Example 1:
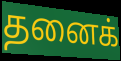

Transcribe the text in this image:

தனைக்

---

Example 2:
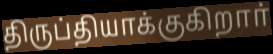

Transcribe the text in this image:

திருப்தியாக்குகிறார்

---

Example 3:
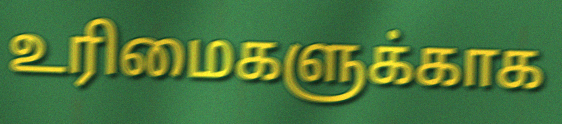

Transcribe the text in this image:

உரிமைகளுக்காக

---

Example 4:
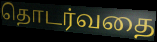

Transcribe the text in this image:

தொடர்வதை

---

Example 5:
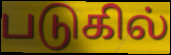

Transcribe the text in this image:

படுகில்